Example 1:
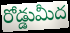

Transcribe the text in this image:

రోడ్డుమీద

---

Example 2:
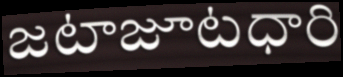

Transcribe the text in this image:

జటాజూటధారి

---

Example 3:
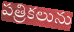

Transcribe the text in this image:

పత్రికలును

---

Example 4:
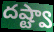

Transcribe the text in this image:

దష్ట్వా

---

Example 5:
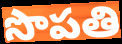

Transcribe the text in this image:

సొపతి